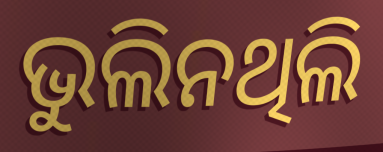
ଭୁଲିନଥିଲି